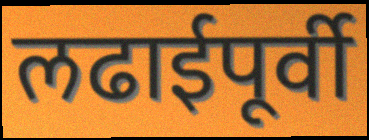
लढाईपूर्वी